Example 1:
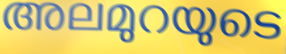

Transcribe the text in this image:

അലമുറയുടെ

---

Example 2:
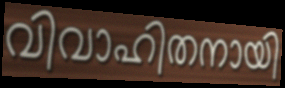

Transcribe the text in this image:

വിവാഹിതനായി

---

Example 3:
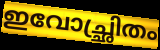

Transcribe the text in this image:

ഇവോച്ഛ്രിതം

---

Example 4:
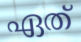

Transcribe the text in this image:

ഏത്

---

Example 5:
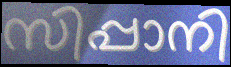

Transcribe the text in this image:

സിപ്പാനി